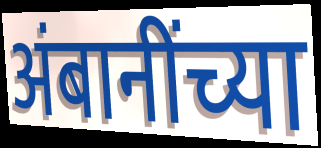
अंबानींच्या